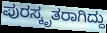
ಪುರಸ್ಕೃತರಾಗಿದ್ದು